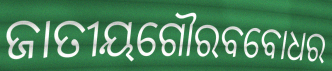
ଜାତୀୟଗୌରବବୋଧର